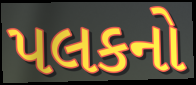
પલકનો